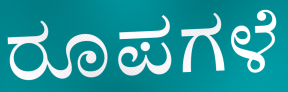
ರೂಪಗಳೆ